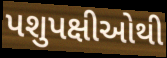
પશુપક્ષીઓથી